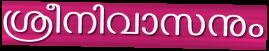
ശ്രീനിവാസനും